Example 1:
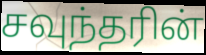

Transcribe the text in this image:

சவுந்தரின்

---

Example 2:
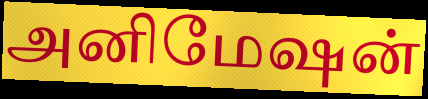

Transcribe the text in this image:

அனிமேஷன்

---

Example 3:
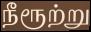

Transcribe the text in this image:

நீரூற்று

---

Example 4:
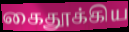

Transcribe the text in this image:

கைதூக்கிய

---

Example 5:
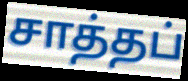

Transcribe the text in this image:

சாத்தப்